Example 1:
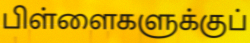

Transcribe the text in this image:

பிள்ளைகளுக்குப்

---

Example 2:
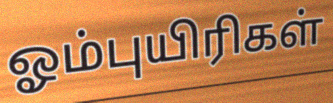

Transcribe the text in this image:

ஓம்புயிரிகள்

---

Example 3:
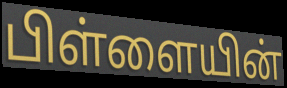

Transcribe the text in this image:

பிள்ளையின்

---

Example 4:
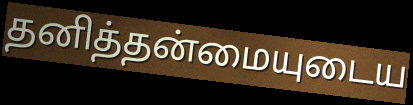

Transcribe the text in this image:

தனித்தன்மையுடைய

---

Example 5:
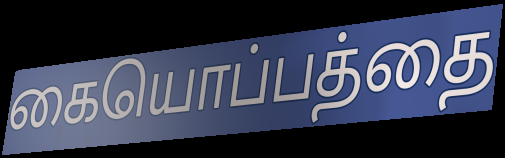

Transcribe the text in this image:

கையொப்பத்தை